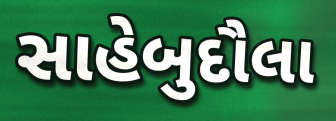
સાહેબુદૌલા